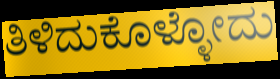
ತಿಳಿದುಕೊಳ್ಳೋದು